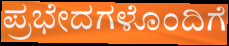
ಪ್ರಭೇದಗಳೊಂದಿಗೆ